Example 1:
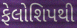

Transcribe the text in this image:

ફેલોશિપથી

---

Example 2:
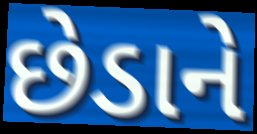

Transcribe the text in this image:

છેડાને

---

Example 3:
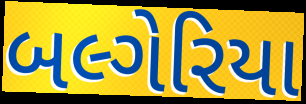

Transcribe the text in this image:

બલ્ગેરિયા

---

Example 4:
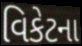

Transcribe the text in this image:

વિકેટના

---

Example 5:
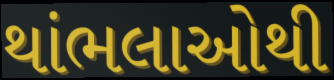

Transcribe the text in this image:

થાંભલાઓથી